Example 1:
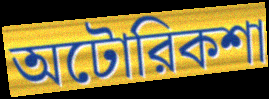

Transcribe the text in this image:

অটোরিকশা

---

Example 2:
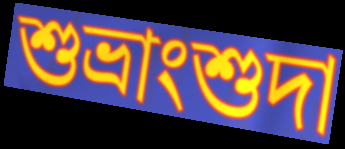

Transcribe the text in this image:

শুভ্রাংশুদা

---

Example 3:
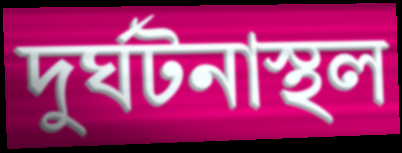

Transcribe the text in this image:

দুর্ঘটনাস্থল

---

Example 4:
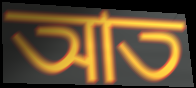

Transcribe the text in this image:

আত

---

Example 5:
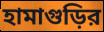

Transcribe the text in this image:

হামাগুড়ির